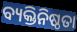
ବ୍ୟକ୍ତିନିଷ୍ଠତା